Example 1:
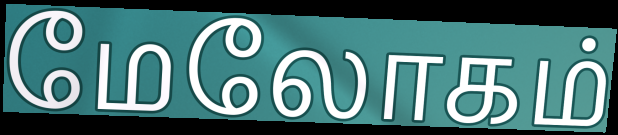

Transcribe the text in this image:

மேலோகம்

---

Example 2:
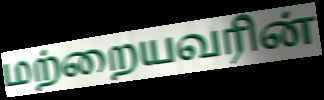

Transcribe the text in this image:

மற்றையவரின்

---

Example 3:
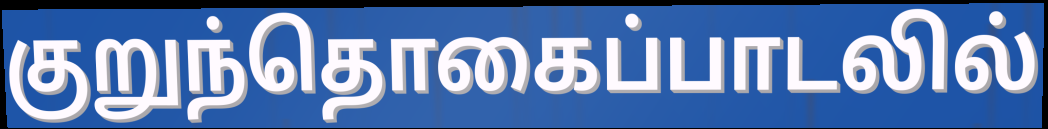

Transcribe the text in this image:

குறுந்தொகைப்பாடலில்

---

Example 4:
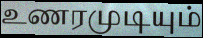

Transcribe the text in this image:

உணரமுடியும்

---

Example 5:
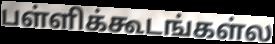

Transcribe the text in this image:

பள்ளிக்கூடங்கள்ல